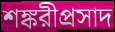
শঙ্করীপ্রসাদ